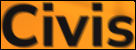
Civis